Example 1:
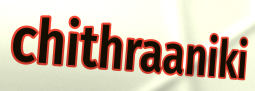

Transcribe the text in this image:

chithraaniki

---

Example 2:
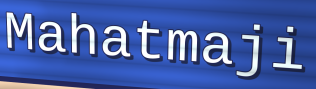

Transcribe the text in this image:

Mahatmaji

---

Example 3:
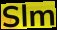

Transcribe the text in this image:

Slm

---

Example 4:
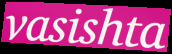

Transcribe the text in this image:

vasishta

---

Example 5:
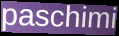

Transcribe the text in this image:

paschimi